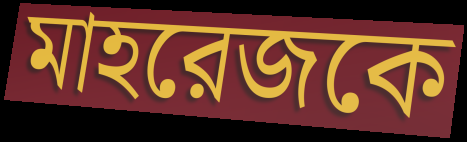
মাহরেজকে